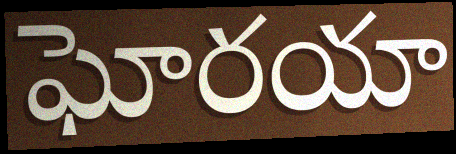
ఘోరయా